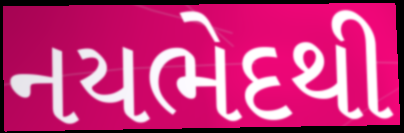
નયભેદથી